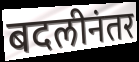
बदलीनंतर